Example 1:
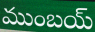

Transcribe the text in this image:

ముంబయ్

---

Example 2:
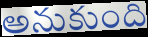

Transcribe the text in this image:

అనుకుంది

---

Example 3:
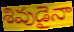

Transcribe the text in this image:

శివుడైనా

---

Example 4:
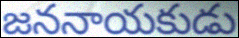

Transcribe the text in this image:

జననాయకుడు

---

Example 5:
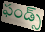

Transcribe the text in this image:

ఫండ్స్